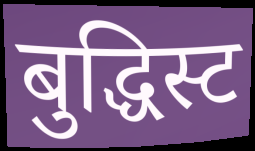
बुद्धिस्ट